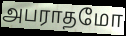
அபராதமோ